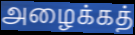
அழைக்கத்